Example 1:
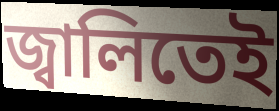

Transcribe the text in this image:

জ্বালিতেই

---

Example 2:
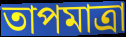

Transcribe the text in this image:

তাপমাত্রা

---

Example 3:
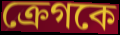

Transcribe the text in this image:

ক্রেগকে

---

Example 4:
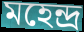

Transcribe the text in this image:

মহেন্দ্র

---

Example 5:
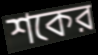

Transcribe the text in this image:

শকের